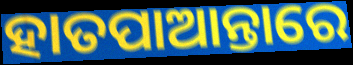
ହାତପାଆନ୍ତାରେ